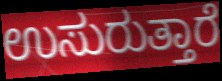
ಉಸುರುತ್ತಾರೆ